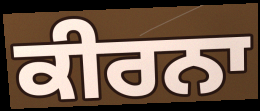
ਕੀਰਨਾ